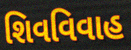
શિવવિવાહ